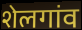
शेलगांव